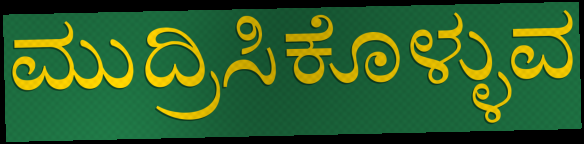
ಮುದ್ರಿಸಿಕೊಳ್ಳುವ